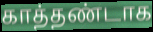
காத்தண்டாக